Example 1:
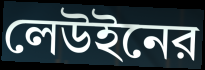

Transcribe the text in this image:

লেউইনের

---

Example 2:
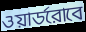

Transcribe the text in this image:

ওয়ার্ডরোবে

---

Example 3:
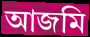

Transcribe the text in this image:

আজমি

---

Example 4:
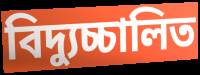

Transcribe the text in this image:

বিদ্যুচ্চালিত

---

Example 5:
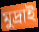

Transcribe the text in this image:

মুদ্রাই